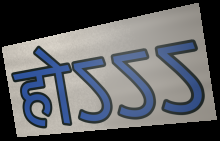
होऽऽऽ